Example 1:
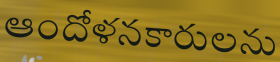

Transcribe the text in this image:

ఆందోళనకారులను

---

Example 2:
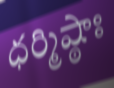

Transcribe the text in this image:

ధర్మిష్ఠాః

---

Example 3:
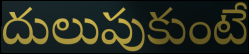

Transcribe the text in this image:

దులుపుకుంటే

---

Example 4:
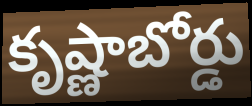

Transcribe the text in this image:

కృష్ణాబోర్డు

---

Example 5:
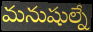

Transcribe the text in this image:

మనుషుల్నే